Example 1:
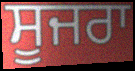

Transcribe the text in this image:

ਸੂਜਰਾ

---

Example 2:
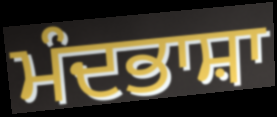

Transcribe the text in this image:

ਮੰਦਭਾਸ਼ਾ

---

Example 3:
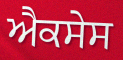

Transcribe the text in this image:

ਐਕਸੇਸ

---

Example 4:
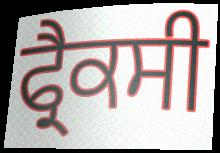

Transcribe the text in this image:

ਫ੍ਰੈਕਸੀ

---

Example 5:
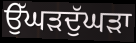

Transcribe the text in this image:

ਉੱਘੜਦੁੱਘੜਾ